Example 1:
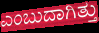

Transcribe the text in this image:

ಎಂಬುದಾಗಿತ್ತು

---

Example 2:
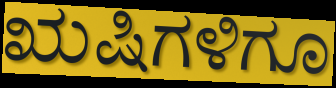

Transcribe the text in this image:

ಋಷಿಗಳಿಗೂ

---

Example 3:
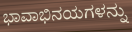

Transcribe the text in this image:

ಭಾವಾಭಿನಯಗಳನ್ನು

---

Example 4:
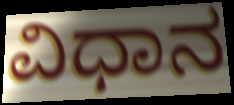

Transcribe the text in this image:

ವಿಧಾನ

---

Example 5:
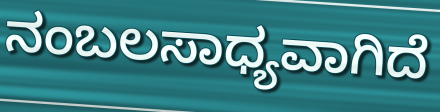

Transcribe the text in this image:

ನಂಬಲಸಾಧ್ಯವಾಗಿದೆ